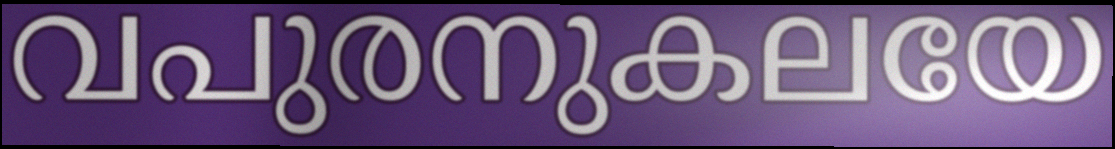
വപുരനുകലയേ